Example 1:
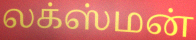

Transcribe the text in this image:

லக்ஸ்மன்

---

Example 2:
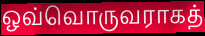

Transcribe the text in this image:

ஒவ்வொருவராகத்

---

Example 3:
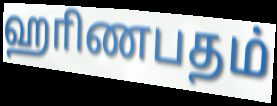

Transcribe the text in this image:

ஹரிணபதம்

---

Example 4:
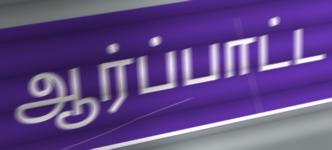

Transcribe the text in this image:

ஆர்ப்பாட்ட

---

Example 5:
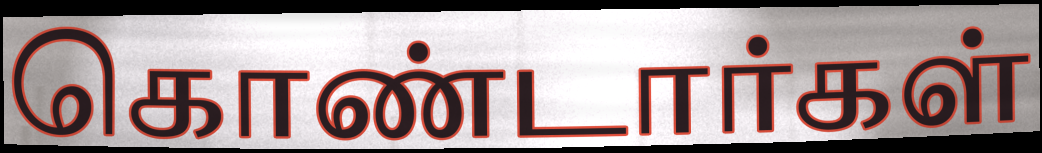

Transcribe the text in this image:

கொண்டார்கள்